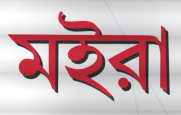
মইরা